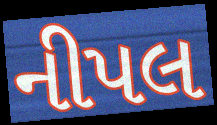
નીપલ